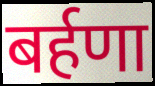
बर्हणा